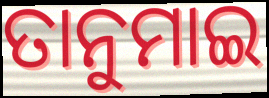
ତାନୁମାଇ